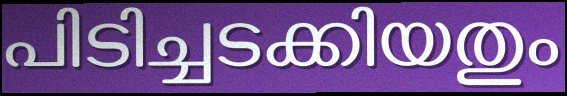
പിടിച്ചടക്കിയതും